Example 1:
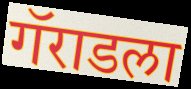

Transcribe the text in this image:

गॅराडला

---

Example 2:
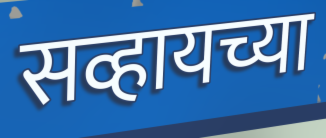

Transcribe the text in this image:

सव्हायच्या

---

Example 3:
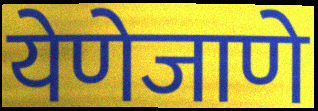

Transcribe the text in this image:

येणेजाणे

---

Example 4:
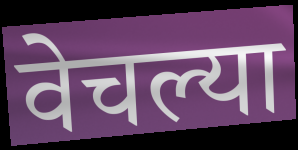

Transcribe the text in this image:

वेचल्या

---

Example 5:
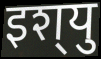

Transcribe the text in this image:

इश्यु